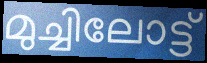
മുച്ചിലോട്ട്